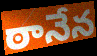
ఠానేన